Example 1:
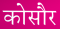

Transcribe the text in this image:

कोसौर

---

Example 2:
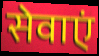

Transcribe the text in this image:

सेवाएं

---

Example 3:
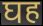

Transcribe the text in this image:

घह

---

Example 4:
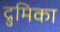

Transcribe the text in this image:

द्रुमिका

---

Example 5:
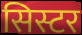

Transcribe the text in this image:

सिस्टर